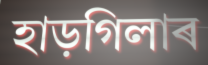
হাড়গিলাৰ